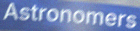
Astronomers